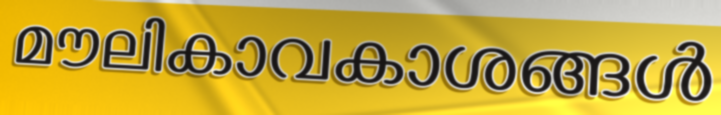
മൗലികാവകാശങ്ങൾ